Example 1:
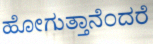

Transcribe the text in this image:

ಹೋಗುತ್ತಾನೆಂದರೆ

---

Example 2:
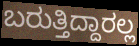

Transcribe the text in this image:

ಬರುತ್ತಿದ್ದಾರಲ್ಲ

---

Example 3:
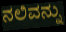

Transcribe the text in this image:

ನಲಿವನ್ನು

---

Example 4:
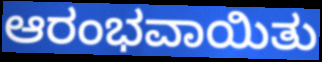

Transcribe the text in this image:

ಆರಂಭವಾಯಿತು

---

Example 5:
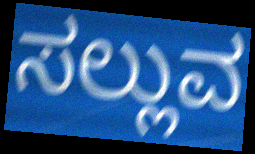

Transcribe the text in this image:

ಸಲ್ಲುವ